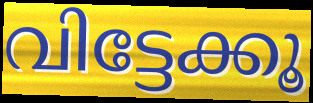
വിട്ടേക്കൂ